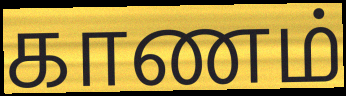
காணம்